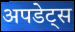
अपडेट्स